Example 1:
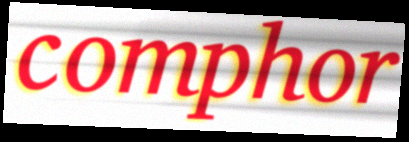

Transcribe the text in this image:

comphor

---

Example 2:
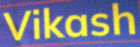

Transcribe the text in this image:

Vikash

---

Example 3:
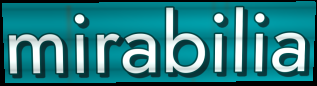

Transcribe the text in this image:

mirabilia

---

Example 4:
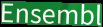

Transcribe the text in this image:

Ensembl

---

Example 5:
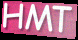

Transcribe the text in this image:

HMT